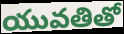
యువతితో